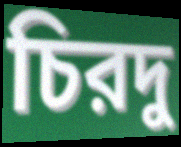
চিরদু